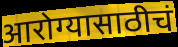
आरोग्यासाठीचं